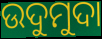
ଉଦୁମୁଦା